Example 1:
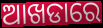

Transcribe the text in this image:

ଆଖଡାରେ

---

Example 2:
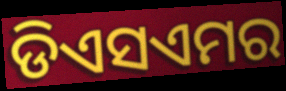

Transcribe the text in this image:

ଡିଏସଏମର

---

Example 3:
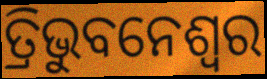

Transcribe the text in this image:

ତ୍ରିଭୁବନେଶ୍ବର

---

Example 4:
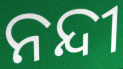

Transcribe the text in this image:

ନନ୍ଦୀ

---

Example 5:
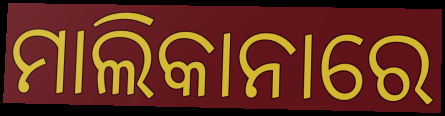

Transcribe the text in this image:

ମାଲିକାନାରେ